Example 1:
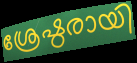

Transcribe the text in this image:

ശ്രേഷ്ഠരായി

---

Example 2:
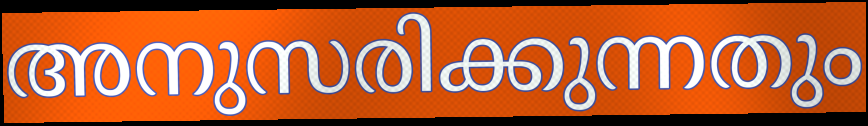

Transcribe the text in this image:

അനുസരിക്കുന്നതും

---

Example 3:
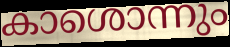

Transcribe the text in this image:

കാശൊന്നും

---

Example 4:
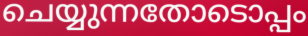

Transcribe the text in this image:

ചെയ്യുന്നതോടൊപ്പം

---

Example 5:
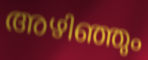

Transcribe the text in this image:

അഴിഞ്ഞും